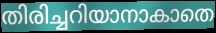
തിരിച്ചറിയാനാകാതെ